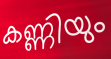
കണ്ണിയും